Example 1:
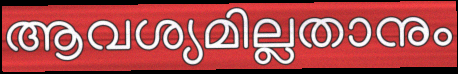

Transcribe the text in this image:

ആവശ്യമില്ലതാനും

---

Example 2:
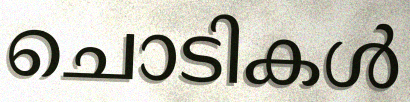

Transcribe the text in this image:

ചൊടികൾ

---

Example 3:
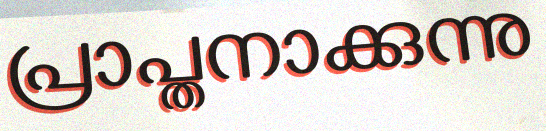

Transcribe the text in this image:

പ്രാപ്തനാക്കുന്നു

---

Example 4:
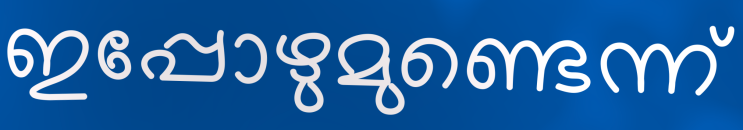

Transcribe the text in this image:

ഇപ്പോഴുമുണ്ടെന്ന്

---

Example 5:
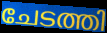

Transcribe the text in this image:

ചേടത്തി